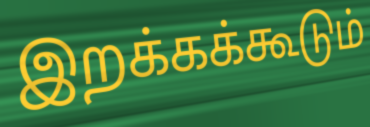
இறக்கக்கூடும்